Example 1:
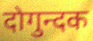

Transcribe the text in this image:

दोगुन्दक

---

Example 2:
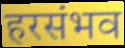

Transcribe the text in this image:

हरसंभव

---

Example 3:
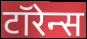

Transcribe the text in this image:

टॉरेन्स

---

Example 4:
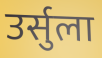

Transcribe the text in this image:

उर्सुला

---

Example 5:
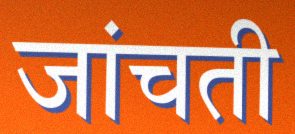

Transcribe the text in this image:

जांचती